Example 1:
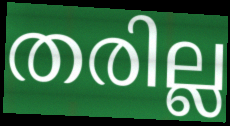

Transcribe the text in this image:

തരില്ല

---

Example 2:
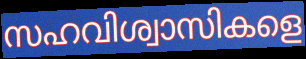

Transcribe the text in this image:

സഹവിശ്വാസികളെ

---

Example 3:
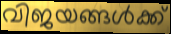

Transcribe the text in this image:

വിജയങ്ങൾക്ക്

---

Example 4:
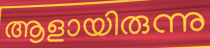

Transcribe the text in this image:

ആളായിരുന്നു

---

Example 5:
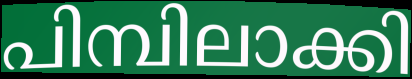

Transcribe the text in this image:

പിമ്പിലാക്കി